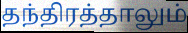
தந்திரத்தாலும்